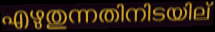
എഴുതുന്നതിനിടയില്